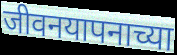
जीवनयापनाच्या